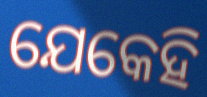
ଯେକେହି